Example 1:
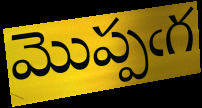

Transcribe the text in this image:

మొప్పఁగ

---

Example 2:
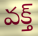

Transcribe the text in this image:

వక్త్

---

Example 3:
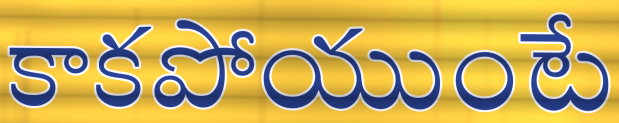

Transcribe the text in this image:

కాకపోయుంటే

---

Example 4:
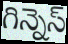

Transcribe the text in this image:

గిన్నెస్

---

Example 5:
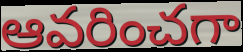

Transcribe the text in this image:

ఆవరించగా